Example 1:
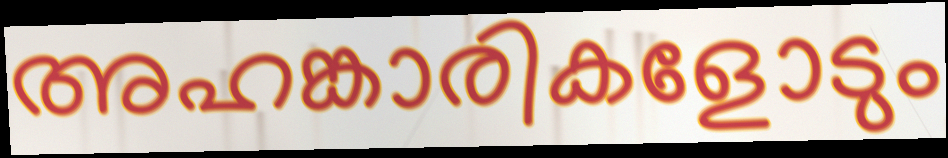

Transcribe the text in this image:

അഹങ്കാരികളോടും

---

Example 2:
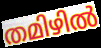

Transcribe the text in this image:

തമിഴിൽ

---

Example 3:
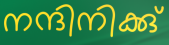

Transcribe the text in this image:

നന്ദിനിക്കു്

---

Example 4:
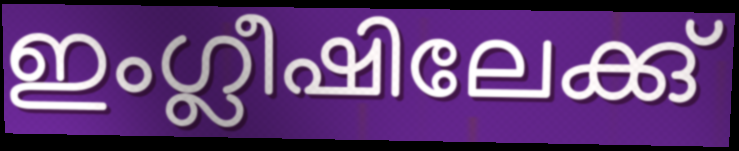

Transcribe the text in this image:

ഇംഗ്ലീഷിലേക്കു്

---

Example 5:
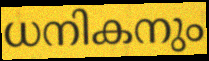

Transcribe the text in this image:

ധനികനും